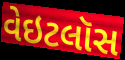
વેઇટલૉસ